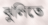
ঝুলিতে